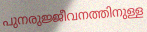
പുനരുജ്ജീവനത്തിനുള്ള